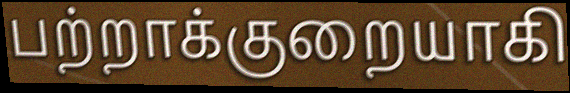
பற்றாக்குறையாகி